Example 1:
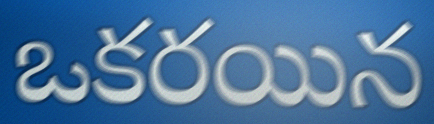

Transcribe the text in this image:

ఒకరయిన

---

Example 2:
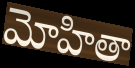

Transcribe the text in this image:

మోహితా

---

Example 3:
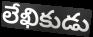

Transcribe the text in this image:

లేఖికుడు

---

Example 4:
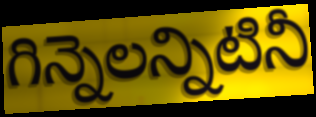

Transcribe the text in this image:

గిన్నెలన్నిటినీ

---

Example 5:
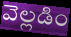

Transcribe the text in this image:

వెల్లడిం